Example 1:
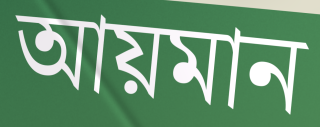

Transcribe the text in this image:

আয়মান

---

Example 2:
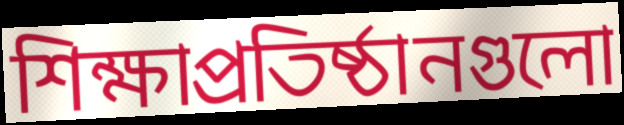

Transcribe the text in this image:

শিক্ষাপ্রতিষ্ঠানগুলো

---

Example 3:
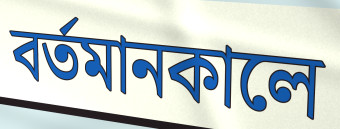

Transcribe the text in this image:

বর্তমানকালে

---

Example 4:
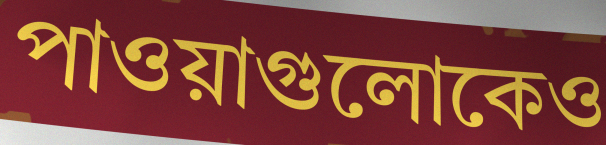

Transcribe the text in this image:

পাওয়াগুলোকেও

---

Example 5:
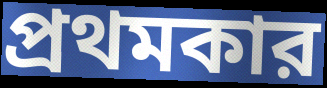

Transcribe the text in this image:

প্রথমকার